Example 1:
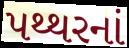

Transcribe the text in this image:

પથ્થરનાં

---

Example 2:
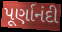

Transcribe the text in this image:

પૂર્ણાનંદી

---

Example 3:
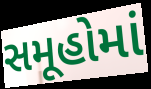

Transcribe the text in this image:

સમૂહોમાં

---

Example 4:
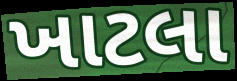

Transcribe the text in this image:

ખાટલા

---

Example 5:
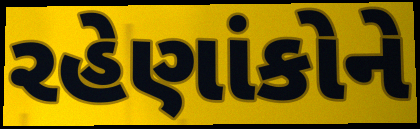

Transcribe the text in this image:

રહેણાંકોને